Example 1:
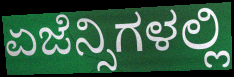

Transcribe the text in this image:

ಏಜೆನ್ಸಿಗಳಲ್ಲಿ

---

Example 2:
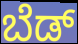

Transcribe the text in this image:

ಬೆಡ್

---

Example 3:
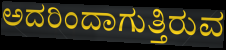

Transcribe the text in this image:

ಅದರಿಂದಾಗುತ್ತಿರುವ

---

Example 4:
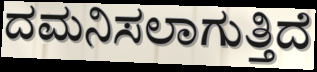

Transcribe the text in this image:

ದಮನಿಸಲಾಗುತ್ತಿದೆ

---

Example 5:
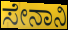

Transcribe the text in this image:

ಸೇನಾನಿ